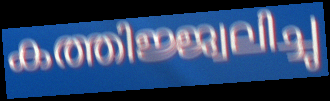
കത്തിജ്ജ്വലിച്ചു